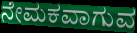
ನೇಮಕವಾಗುವ